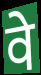
वे